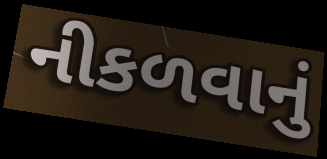
નીકળવાનું